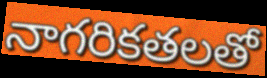
నాగరికతలతో